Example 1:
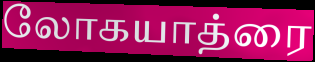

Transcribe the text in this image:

லோகயாத்ரை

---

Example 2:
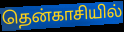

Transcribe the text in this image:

தென்காசியில்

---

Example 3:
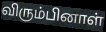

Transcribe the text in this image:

விரும்பினாள்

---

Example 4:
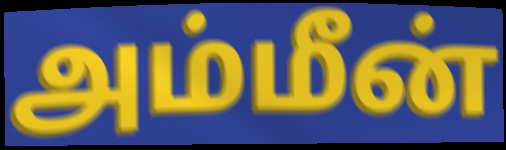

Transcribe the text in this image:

அம்மீன்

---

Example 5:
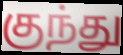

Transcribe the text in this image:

குந்து